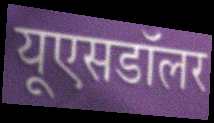
यूएसडॉलर